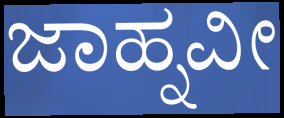
ಜಾಹ್ನವೀ